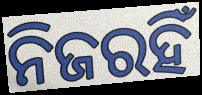
ନିଜରହିଁ